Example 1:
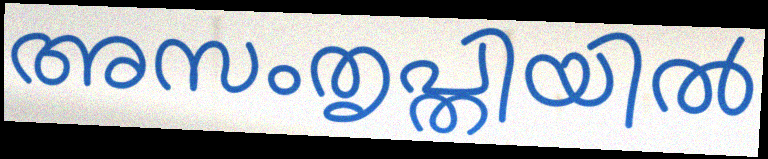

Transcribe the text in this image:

അസംതൃപ്തിയിൽ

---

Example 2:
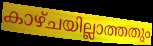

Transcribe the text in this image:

കാഴ്ചയില്ലാത്തതും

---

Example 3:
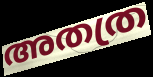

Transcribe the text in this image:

അതത്ര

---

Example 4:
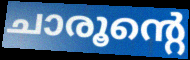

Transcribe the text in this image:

ചാരൂന്റെ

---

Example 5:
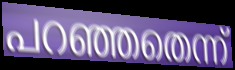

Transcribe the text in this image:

പറഞ്ഞതെന്ന്